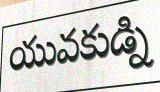
యువకుడ్ని